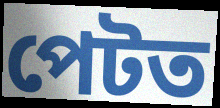
পেটত